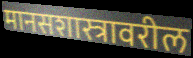
मानसशास्त्रावरील